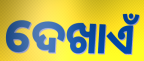
ଦେଖାଏଁ